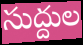
సుద్దుల